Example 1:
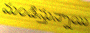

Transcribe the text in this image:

మండిస్తున్నాయి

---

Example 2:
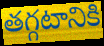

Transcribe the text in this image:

తగ్గటానికి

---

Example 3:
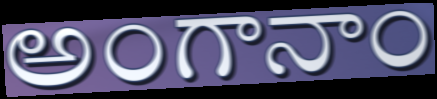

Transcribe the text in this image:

అంగానాం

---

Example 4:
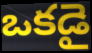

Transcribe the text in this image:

ఒకడై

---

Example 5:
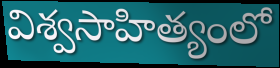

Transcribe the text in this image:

విశ్వసాహిత్యంలో